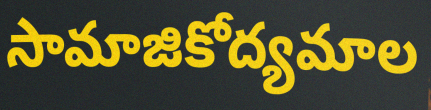
సామాజికోద్యమాల